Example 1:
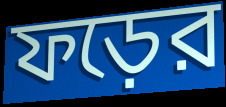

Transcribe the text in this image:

ফড়ের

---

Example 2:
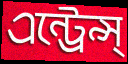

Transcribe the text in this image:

এন্ট্রেন্স্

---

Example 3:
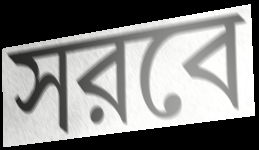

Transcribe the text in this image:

সরবে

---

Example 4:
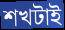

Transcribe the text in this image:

শখটাই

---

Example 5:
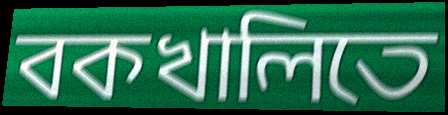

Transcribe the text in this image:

বকখালিতে